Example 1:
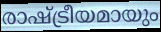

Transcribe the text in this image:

രാഷ്ട്രീയമായും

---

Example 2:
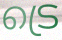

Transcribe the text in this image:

ട്രെ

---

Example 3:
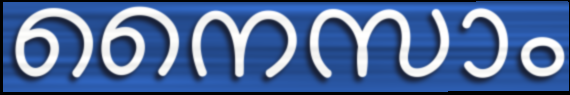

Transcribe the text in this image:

നൈസാം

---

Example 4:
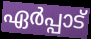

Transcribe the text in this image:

ഏർപ്പാട്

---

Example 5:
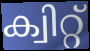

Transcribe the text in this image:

ക്വിറ്റ്